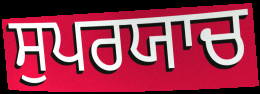
ਸੁਪਰਯਾਚ